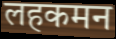
लहकमन